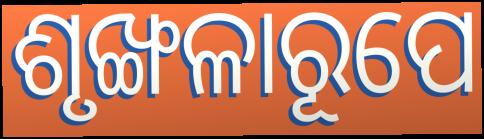
ଶୃଙ୍ଖଳାରୂପେ